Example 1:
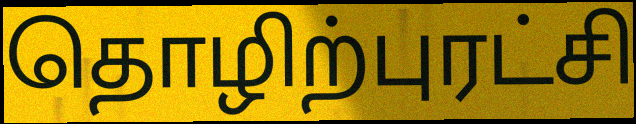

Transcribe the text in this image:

தொழிற்புரட்சி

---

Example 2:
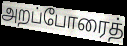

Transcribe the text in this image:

அறப்போரைத்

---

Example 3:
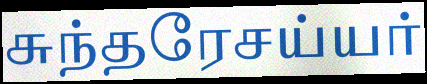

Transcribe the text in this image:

சுந்தரேசய்யர்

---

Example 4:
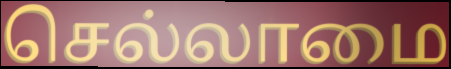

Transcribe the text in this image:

செல்லாமை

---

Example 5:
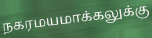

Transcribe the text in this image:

நகரமயமாக்கலுக்கு